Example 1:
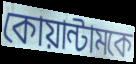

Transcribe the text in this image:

কোয়ান্টামকে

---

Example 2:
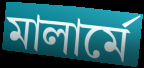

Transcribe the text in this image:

মালার্মে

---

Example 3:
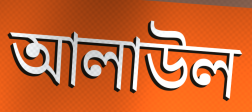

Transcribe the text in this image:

আলাউল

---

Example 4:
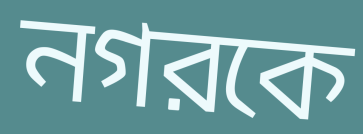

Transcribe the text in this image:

নগরকে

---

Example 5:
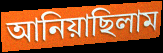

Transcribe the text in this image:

আনিয়াছিলাম